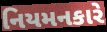
નિયમનકારે